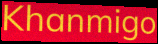
Khanmigo